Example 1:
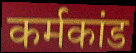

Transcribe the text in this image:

कर्मकांड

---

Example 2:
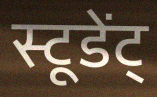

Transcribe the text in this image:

स्टूडेंट्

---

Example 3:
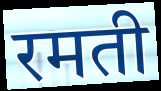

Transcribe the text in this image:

रमती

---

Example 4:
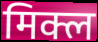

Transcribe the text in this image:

मिक्ल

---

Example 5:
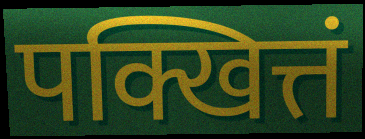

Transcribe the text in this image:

पक्खित्तं